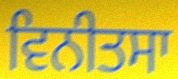
ਵਿਨੀਤਸਾ